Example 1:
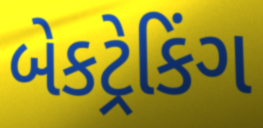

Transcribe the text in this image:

બેકટ્રેકિંગ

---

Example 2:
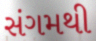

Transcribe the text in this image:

સંગમથી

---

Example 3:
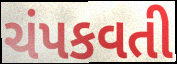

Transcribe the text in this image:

ચંપકવતી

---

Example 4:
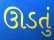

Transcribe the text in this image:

ઊડતું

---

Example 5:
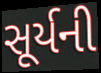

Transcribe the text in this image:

સૂર્યની